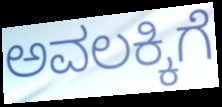
ಅವಲಕ್ಕಿಗೆ